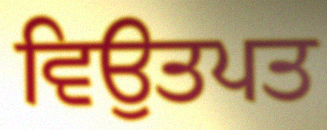
ਵਿਉਤਪਤ